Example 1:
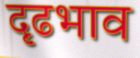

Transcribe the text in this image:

दृढभाव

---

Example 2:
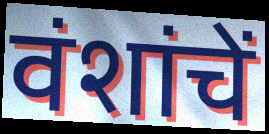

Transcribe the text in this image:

वंशांचें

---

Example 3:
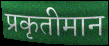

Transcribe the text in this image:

प्रकृतीमान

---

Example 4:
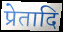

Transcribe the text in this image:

प्रेतादि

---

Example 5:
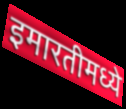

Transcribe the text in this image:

इमारतीमध्ये